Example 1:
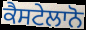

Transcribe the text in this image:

ਕੈਸਟੇਲਾਨੋ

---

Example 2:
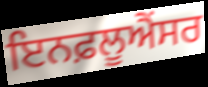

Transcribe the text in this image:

ਇਨਫ਼ਲੂਐਂਸਰ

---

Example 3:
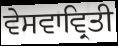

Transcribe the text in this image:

ਵੇਸਵਾਵ੍ਰਿਤੀ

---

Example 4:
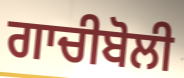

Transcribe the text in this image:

ਗਾਚੀਬੋਲੀ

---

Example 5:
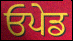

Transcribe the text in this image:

ਓਪੇਡ